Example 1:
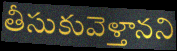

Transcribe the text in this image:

తీసుకువెళ్తానని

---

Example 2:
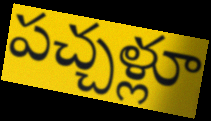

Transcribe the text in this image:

పచ్చళ్లూ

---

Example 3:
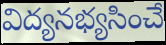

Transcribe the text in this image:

విద్యనభ్యసించే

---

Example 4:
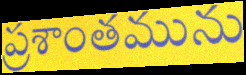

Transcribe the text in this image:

ప్రశాంతమును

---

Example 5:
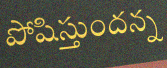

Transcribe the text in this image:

పోషిస్తుందన్న